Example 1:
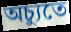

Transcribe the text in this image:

অচ্যুতে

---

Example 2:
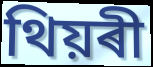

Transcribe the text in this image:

থিয়ৰী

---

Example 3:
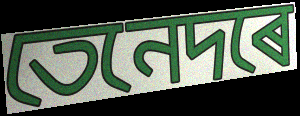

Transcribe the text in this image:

তেনেদৰে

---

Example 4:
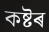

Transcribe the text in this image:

কষ্টৰ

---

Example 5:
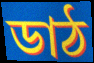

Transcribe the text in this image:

ডাঠ